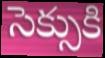
సెక్సుకి